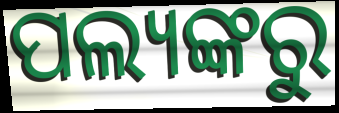
ପଲ୍ୟଙ୍କରୁ